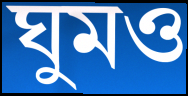
ঘুমও